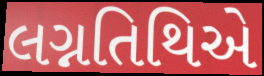
લગ્નતિથિએ